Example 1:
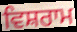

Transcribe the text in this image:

ਵਿਸ਼ਰਾਮ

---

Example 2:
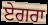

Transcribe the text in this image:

ਏਗਰਾ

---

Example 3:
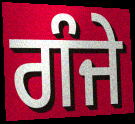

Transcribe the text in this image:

ਗੰਜੇ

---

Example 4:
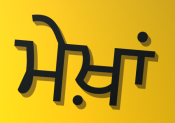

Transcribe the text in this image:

ਮੇਖ਼ਾਂ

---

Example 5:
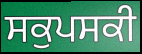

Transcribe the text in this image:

ਸਕੁਪਸਕੀ